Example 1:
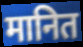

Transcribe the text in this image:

मानित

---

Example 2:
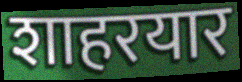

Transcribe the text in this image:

शाहरयार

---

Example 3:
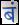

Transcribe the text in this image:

बं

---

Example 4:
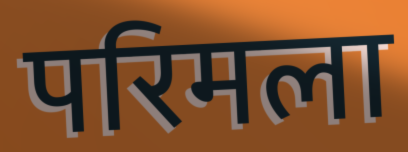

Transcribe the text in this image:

परिमला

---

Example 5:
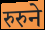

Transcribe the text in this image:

रुरुने